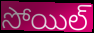
సోయిల్